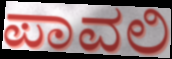
ಪಾವಲಿ